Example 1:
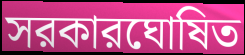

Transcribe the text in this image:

সরকারঘোষিত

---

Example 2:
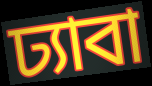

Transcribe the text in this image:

ঢ্যাবা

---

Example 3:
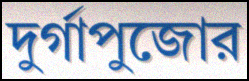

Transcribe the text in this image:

দুর্গাপুজোর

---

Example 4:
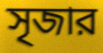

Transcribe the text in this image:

সৃজার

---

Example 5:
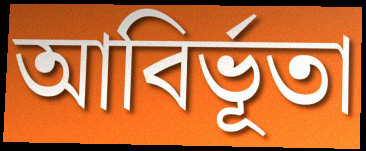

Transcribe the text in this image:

আবির্ভূতা